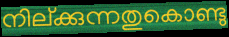
നില്ക്കുന്നതുകൊണ്ടു